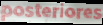
posteriores